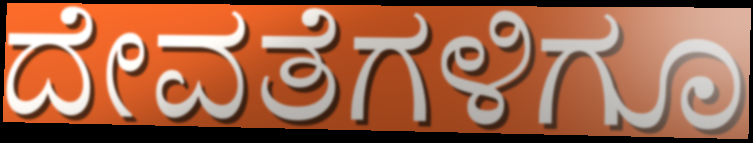
ದೇವತೆಗಳಿಗೂ